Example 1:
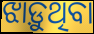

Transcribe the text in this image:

ଝାଡ଼ୁଥିବା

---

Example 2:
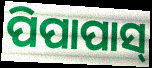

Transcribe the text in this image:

ପିପାପାସ୍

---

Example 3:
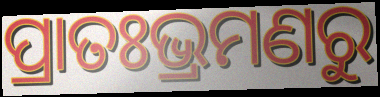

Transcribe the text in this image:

ପ୍ରାତଃଭ୍ରମଣରୁ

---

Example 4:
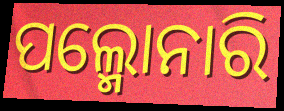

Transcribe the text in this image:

ପଲ୍ମୋନାରି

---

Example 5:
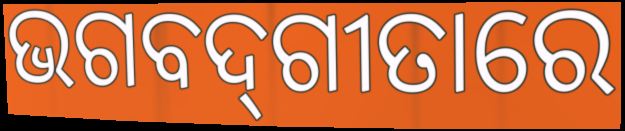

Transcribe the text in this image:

ଭଗବଦ୍‌ଗୀତାରେ